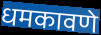
धमकावणे